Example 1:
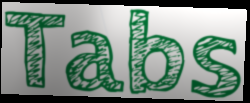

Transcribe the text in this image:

Tabs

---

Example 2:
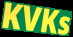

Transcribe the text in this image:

KVKs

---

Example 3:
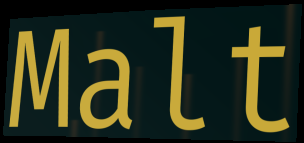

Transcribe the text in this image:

Malt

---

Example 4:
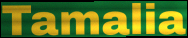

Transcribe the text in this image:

Tamalia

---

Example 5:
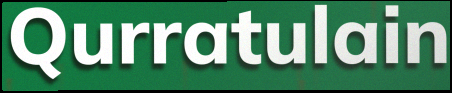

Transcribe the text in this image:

Qurratulain